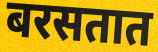
बरसतात